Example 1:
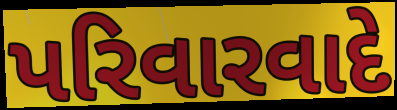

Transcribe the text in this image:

પરિવારવાદે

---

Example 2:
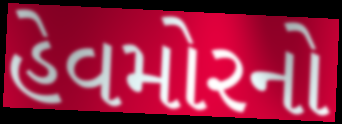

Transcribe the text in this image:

હેવમોરનો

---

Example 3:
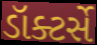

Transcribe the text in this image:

ડૉક્ટર્સે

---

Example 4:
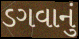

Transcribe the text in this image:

ડગવાનું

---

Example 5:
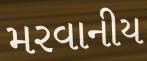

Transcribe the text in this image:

મરવાનીય